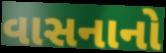
વાસનાનો